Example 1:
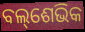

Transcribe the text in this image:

ବଲ୍‌ଶେଭିକ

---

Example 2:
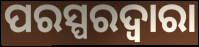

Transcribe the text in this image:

ପରସ୍ପରଦ୍ୱାରା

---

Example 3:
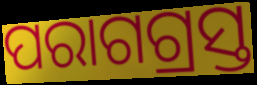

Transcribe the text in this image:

ପରାଗଗ୍ରସ୍ତ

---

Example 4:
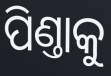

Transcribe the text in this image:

ପିଣ୍ତାକୁ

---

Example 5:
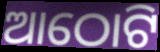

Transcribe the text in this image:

ଆଠୋଟି